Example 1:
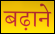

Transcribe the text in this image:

बढ़ाने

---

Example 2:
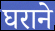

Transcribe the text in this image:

घराने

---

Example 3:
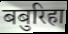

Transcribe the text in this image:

बबुरिहा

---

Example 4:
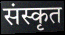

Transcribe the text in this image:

संस्कृत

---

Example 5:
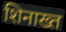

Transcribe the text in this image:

शिनाख्त